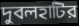
দুবলহাটির